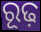
ରୂଢ଼